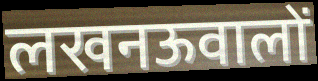
लखनऊवालों